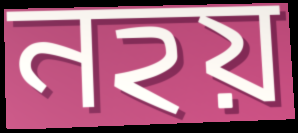
নহয়